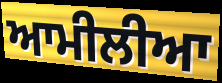
ਆਮੀਲੀਆ